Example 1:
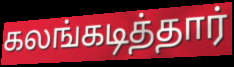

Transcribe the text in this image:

கலங்கடித்தார்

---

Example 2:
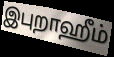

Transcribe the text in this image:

இபுறாஹீம்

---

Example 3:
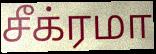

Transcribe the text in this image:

சீக்ரமா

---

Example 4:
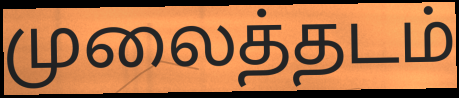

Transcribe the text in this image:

முலைத்தடம்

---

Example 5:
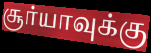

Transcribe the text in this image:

சூர்யாவுக்கு